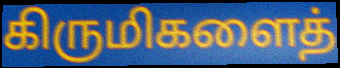
கிருமிகளைத்